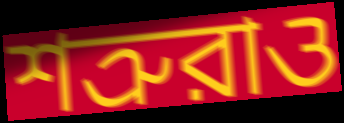
শত্রুরাও